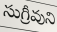
సుగ్రీవుని